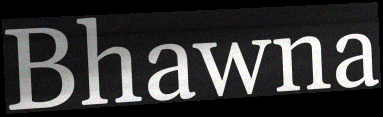
Bhawna